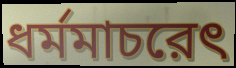
ধর্মমাচরেৎ